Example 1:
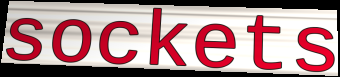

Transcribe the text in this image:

sockets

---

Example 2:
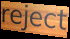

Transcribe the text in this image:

reject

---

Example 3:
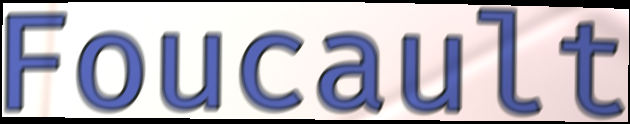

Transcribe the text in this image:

Foucault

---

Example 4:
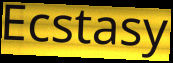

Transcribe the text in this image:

Ecstasy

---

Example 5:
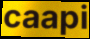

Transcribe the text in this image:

caapi